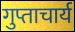
गुप्ताचार्य